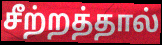
சீற்றத்தால்